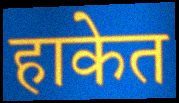
हाकेत